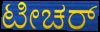
ಟೀಚರ್